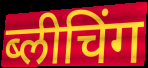
ब्लीचिंग